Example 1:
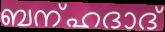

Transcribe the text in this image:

ബന്ഹദാദ്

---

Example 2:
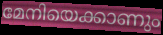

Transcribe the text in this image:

മേനിയെക്കാണും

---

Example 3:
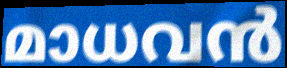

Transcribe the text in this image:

മാധവൻ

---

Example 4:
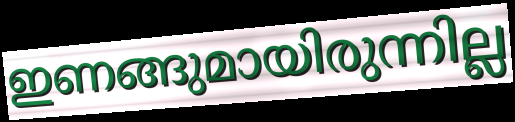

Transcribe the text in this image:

ഇണങ്ങുമായിരുന്നില്ല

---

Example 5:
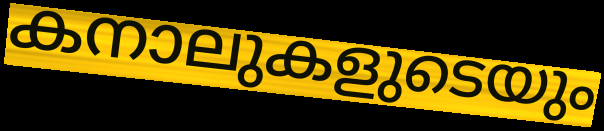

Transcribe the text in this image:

കനാലുകളുടെയും